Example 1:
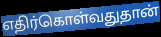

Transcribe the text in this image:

எதிர்கொள்வதுதான்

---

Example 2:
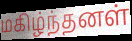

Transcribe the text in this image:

மகிழ்ந்தனள்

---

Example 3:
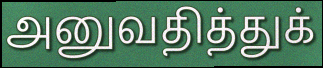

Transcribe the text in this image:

அனுவதித்துக்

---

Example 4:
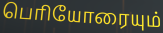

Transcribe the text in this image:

பெரியோரையும்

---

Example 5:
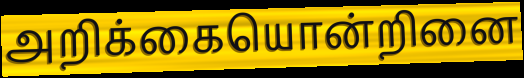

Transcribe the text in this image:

அறிக்கையொன்றினை